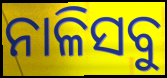
ନାଳିସବୁ